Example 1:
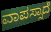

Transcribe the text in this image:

ವಾಪಸ್ಸಾದೆ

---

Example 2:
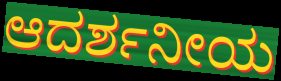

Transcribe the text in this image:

ಆದರ್ಶನೀಯ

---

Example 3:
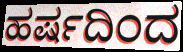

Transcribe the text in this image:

ಹರ್ಷದಿಂದ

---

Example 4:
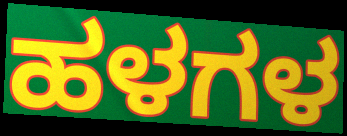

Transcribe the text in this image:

ಹಳಗಳ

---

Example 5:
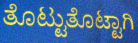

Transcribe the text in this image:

ತೊಟ್ಟುತೊಟ್ಟಾಗಿ